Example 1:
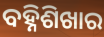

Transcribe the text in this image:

ବହ୍ନିଶିଖାର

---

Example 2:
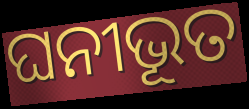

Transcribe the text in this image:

ଘନୀଭୂତ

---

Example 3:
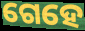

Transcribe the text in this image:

ଗେହେ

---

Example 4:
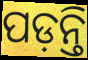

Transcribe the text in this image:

ପଡ଼ନ୍ତି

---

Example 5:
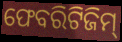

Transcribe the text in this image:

ଫେବରିଟିଜିମ୍